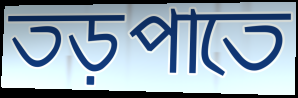
তড়পাতে